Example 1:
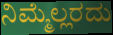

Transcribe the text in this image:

ನಿಮ್ಮೆಲ್ಲರದು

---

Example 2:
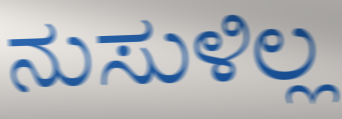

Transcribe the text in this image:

ನುಸುಳಿಲ್ಲ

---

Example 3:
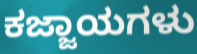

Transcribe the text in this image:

ಕಜ್ಜಾಯಗಳು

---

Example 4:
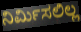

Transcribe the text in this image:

ನಿರ್ಮಿಸಲಿಲ್ಲ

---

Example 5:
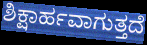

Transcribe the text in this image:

ಶಿಕ್ಷಾರ್ಹವಾಗುತ್ತದೆ